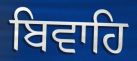
ਬਿਵਾਹਿ